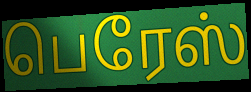
பெரேஸ்